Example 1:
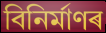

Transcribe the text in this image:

বিনিৰ্মাণৰ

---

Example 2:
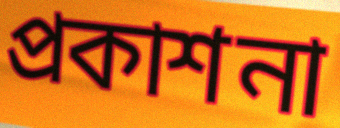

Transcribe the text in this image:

প্ৰকাশনা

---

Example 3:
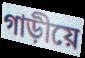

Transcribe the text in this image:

গাড়ীয়ে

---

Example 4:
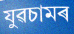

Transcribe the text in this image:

যুৱচামৰ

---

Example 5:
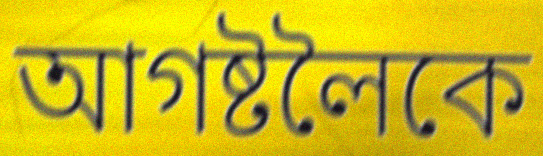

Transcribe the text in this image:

আগষ্টলৈকে